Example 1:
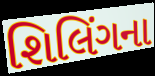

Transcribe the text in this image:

શિલિંગના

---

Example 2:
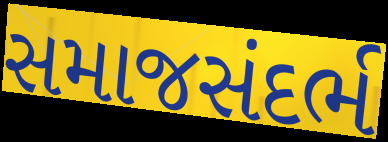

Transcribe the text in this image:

સમાજસંદર્ભ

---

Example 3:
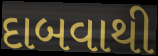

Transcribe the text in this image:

દાબવાથી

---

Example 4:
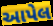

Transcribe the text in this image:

આપેલ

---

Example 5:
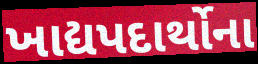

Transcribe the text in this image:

ખાદ્યપદાર્થોના